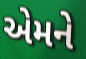
એમને